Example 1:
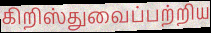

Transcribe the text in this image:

கிறிஸ்துவைப்பற்றிய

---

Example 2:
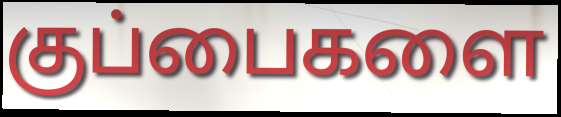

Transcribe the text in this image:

குப்பைகளை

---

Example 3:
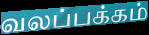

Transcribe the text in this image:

வலப்பக்கம்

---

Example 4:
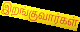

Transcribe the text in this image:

இறங்குவார்கள்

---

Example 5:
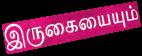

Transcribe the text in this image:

இருகையையும்